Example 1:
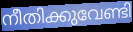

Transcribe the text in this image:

നീതിക്കുവേണ്ടി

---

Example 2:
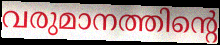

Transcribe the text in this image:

വരുമാനത്തിന്റെ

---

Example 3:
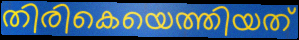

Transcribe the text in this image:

തിരികെയെത്തിയത്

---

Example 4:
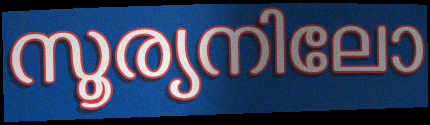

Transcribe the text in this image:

സൂര്യനിലോ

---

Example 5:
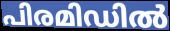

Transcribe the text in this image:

പിരമിഡിൽ